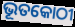
ଭୂତକୋଠୀ